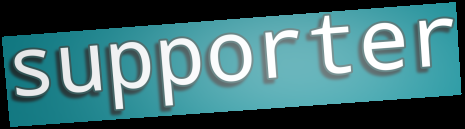
supporter